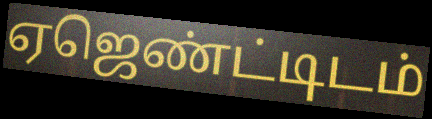
ஏஜெண்ட்டிடம்